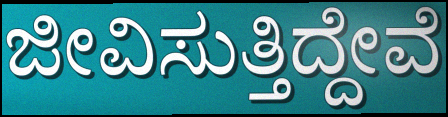
ಜೀವಿಸುತ್ತಿದ್ದೇವೆ